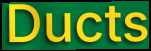
Ducts